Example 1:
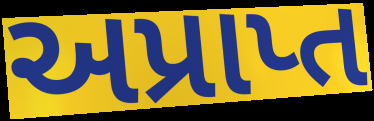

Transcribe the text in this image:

અપ્રાપ્ત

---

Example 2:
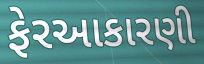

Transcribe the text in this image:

ફેરઆકારણી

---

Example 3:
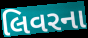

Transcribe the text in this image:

લિવરના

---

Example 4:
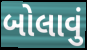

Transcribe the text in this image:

બોલાવું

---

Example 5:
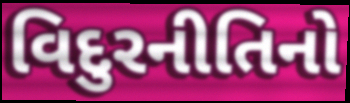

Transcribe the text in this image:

વિદુરનીતિનો